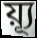
য়্যূ